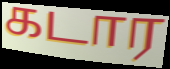
கடார